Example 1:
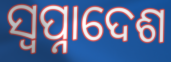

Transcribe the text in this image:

ସ୍ଵପ୍ନାଦେଶ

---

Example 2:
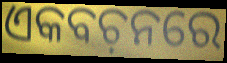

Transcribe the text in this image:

ଏକବଚ଼ନରେ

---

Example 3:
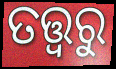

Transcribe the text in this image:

ତତ୍ତ୍ୱରୁ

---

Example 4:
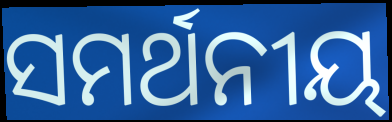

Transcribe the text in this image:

ସମର୍ଥନୀୟ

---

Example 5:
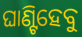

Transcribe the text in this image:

ଘାଣ୍ଟିହେବୁ